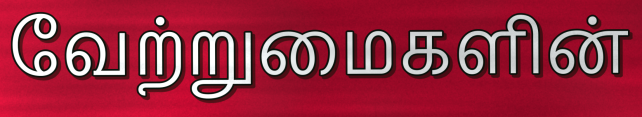
வேற்றுமைகளின்